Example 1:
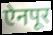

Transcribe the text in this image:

ऐनपूर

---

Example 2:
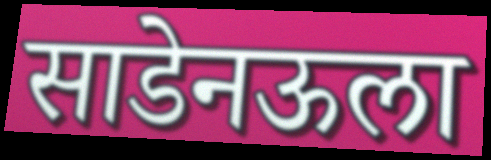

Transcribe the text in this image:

साडेनऊला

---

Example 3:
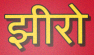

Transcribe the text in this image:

झीरो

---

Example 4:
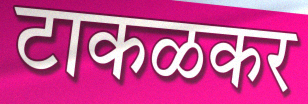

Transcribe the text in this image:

टाकळकर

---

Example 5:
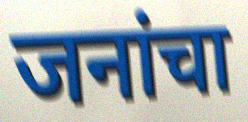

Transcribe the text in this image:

जनांचा